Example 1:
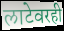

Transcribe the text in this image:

लाटेवरही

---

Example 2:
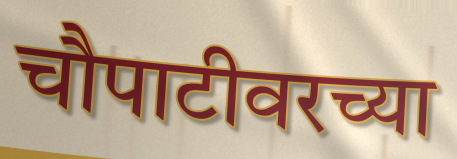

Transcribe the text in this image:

चौपाटीवरच्या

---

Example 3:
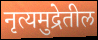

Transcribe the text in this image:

नृत्यमुद्रेतील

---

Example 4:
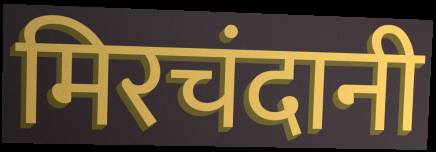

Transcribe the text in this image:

मिरचंदानी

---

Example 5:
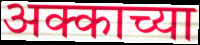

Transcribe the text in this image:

अक्काच्या